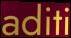
aditi